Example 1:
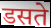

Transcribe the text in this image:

डसते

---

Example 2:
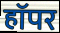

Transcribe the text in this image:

हॉपर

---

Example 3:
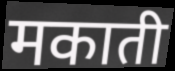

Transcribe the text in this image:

मकाती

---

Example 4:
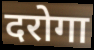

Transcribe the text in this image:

दरोगा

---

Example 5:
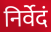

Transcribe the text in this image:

निर्वेदं